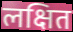
लक्षित